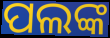
ପଲଙ୍କ